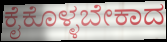
ಕೈಕೊಳ್ಳಬೇಕಾದ